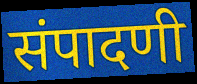
संपादणी